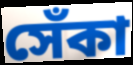
সেঁকা